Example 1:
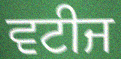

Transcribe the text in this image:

ਵਟੀਜ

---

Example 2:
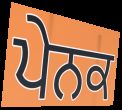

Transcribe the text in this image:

ਪੇਨਕ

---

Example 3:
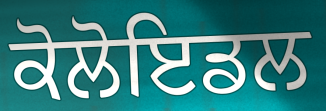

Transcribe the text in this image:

ਕੋਲੋਇਡਲ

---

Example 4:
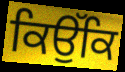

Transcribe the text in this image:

ਕਿਉੱਕਿ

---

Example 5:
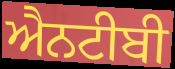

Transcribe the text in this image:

ਐਨਟੀਬੀ